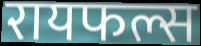
रायफल्स